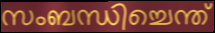
സംബന്ധിച്ചെന്ത്